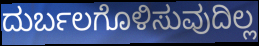
ದುರ್ಬಲಗೊಳಿಸುವುದಿಲ್ಲ